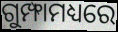
ଗୁମ୍ଫାମଧ୍ୟରେ